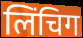
लिंचिग